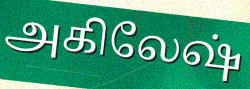
அகிலேஷ்